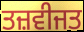
ਤਜ਼ਵੀਜਤ